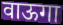
वाऊगा